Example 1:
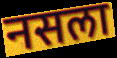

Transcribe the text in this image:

नसला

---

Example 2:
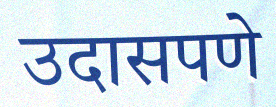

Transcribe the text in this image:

उदासपणे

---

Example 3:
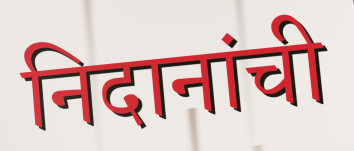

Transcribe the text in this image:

निदानांची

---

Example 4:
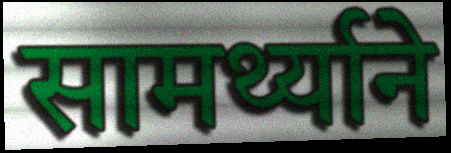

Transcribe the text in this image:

सामर्थ्याने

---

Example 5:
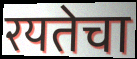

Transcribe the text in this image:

रयतेचा